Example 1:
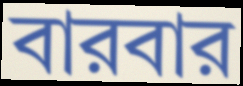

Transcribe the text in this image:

বারবার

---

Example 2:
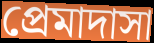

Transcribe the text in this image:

প্রেমাদাসা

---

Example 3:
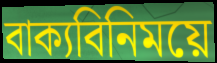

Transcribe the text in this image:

বাক্যবিনিময়ে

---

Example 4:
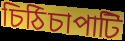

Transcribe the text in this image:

চিঠিচাপাটি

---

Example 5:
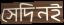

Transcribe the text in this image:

সেদিনই